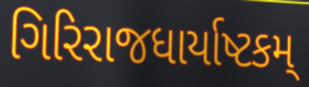
ગિરિરાજધાર્યાષ્ટકમ્